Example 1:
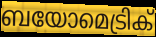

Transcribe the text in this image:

ബയോമെട്രിക്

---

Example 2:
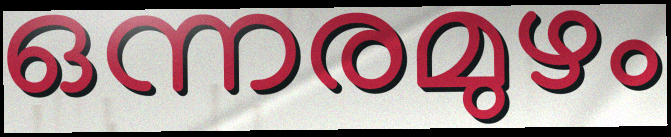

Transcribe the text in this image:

ഒന്നരമുഴം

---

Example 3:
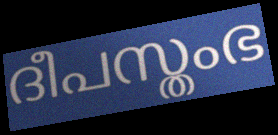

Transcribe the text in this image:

ദീപസ്തംഭ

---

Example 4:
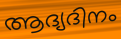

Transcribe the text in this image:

ആദ്യദിനം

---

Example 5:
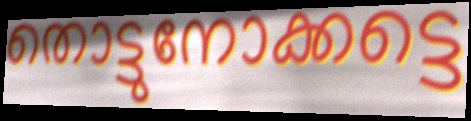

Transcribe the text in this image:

തൊട്ടുനോക്കട്ടെ